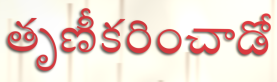
తృణీకరించాడో